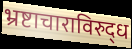
भ्रष्टाचाराविरुद्ध